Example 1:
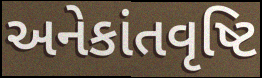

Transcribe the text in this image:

અનેકાંતવૃષ્ટિ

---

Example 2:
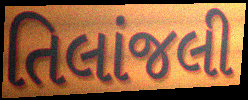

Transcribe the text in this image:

તિલાંજલી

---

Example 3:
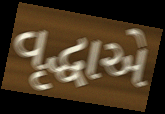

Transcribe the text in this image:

વૃદ્ધાએ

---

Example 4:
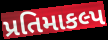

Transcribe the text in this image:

પ્રતિમાકલ્પ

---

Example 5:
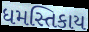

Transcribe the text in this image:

ધમસ્તિકાય